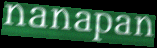
nanapan